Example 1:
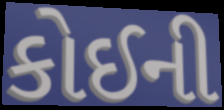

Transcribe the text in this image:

કોઈની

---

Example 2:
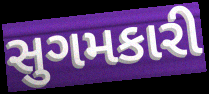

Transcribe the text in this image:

સુગમકારી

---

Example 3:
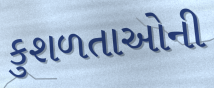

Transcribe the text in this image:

કુશળતાઓની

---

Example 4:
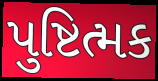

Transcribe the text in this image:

પુષ્ટિત્મક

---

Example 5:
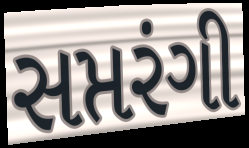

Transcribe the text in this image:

સપ્તરંગી